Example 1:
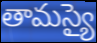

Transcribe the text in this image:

తామస్యై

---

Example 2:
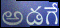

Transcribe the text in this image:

అడగే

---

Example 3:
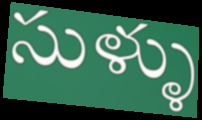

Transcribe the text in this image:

సుళ్ళు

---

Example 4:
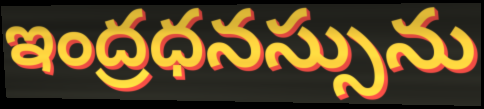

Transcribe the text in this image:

ఇంద్రధనస్సును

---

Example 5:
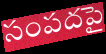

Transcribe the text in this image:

సంపదపై